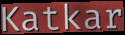
Katkar